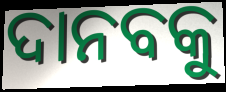
ଦାନବକୁ